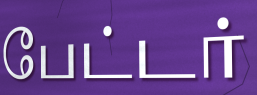
பேட்டர்